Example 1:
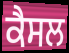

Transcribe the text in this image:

ਕੈਸਲ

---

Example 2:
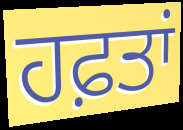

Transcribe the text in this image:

ਹਫ਼ਤਾਂ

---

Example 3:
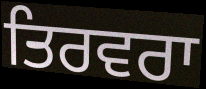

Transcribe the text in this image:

ਤਿਰਵਰਾ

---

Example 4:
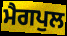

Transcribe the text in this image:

ਮੈਗਪੁਲ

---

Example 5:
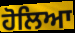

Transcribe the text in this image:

ਹੋਲਿਆ